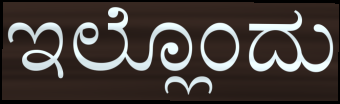
ಇಲ್ಲೊಂದು